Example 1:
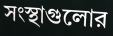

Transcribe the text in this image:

সংস্থাগুলোর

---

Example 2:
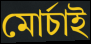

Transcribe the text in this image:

মোর্চাই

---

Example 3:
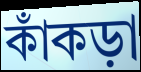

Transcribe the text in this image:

কাঁকড়া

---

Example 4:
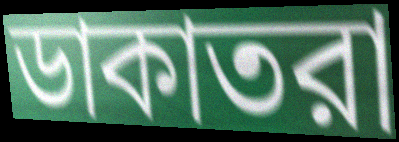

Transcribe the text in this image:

ডাকাতরা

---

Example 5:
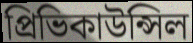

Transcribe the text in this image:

প্রিভিকাউন্সিল